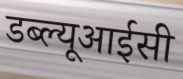
डब्ल्यूआईसी